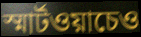
স্মার্টওয়াচেও